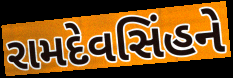
રામદેવસિંહને